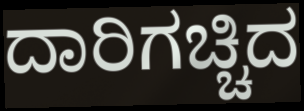
ದಾರಿಗಚ್ಚಿದ